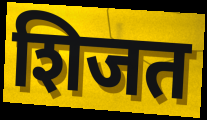
शिजत